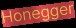
Honegger